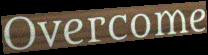
Overcome